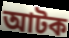
আটক